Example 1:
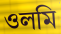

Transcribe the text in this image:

ওলমি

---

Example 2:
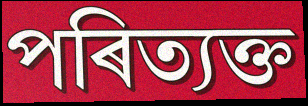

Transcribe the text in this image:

পৰিত্যক্ত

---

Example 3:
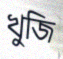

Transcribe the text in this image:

খুজি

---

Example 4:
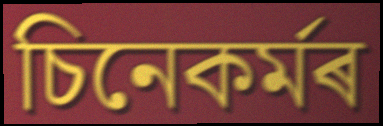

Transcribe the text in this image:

চিনেকৰ্মৰ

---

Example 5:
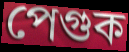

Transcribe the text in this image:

পেগুক